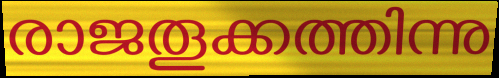
രാജതൂക്കത്തിന്നു